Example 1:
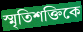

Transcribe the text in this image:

স্মৃতিশক্তিকে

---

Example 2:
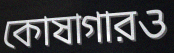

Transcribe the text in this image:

কোষাগারও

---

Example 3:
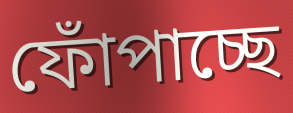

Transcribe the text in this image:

ফোঁপাচ্ছে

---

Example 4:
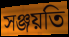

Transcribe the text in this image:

সঞ্জয়তি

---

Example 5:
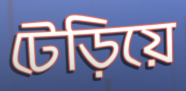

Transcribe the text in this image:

টেড়িয়ে